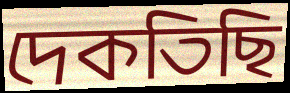
দেকতিছি